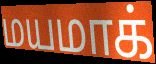
மயமாக்